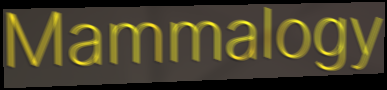
Mammalogy